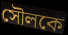
সৌলকে